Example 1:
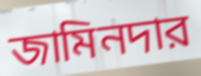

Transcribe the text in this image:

জামিনদার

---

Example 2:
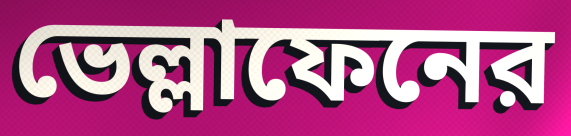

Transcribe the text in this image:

ভেল্লাফেনের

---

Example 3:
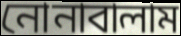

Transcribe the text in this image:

নোনাবালাম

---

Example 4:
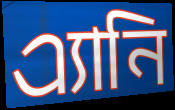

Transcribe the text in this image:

এ্যানি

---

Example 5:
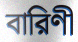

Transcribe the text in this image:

বারিণী